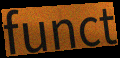
funct